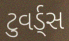
ટુવર્ડ્સ